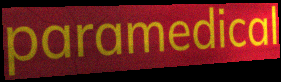
paramedical